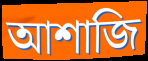
আশাজি